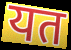
यत